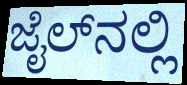
ಜೈಲ್‌ನಲ್ಲಿ